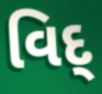
વિદ્